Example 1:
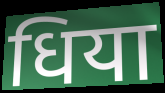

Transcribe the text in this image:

धिया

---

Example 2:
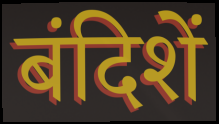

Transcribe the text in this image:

बंदिशें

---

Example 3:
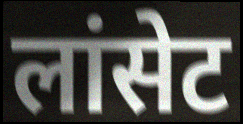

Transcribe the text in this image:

लांसेट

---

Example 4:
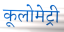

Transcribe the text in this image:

कूलोमेट्री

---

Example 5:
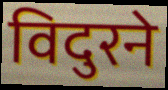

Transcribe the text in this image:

विदुरने